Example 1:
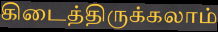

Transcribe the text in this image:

கிடைத்திருக்கலாம்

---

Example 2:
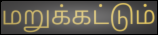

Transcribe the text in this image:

மறுக்கட்டும்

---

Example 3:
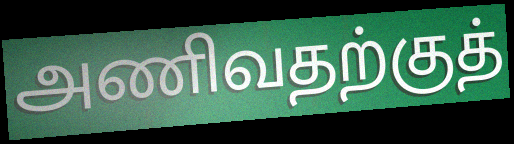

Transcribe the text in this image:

அணிவதற்குத்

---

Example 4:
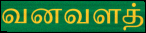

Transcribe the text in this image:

வனவளத்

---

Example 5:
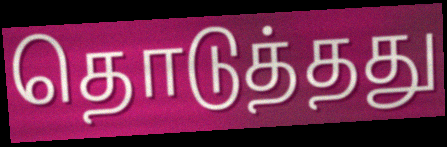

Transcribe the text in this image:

தொடுத்தது